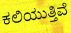
ಕಲಿಯುತ್ತಿವೆ